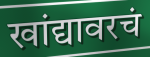
खांद्यावरचं